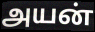
அயன்